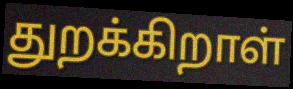
துறக்கிறாள்